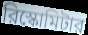
রিস্কোমিটার